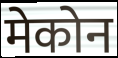
मेकोन